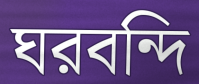
ঘরবন্দি